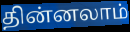
தின்னலாம்